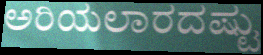
ಅರಿಯಲಾರದಷ್ಟು